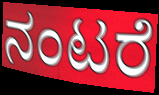
ನಂಟರೆ